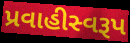
પ્રવાહીસ્વરૂપ